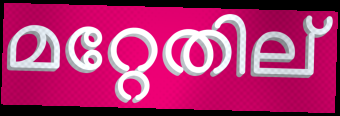
മറ്റേതില്